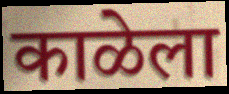
काळेला